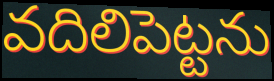
వదిలిపెట్టను